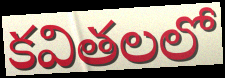
కవితలలో